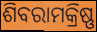
ଶିବରାମକ୍ରିଷ୍ଣ